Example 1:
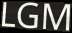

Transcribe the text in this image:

LGM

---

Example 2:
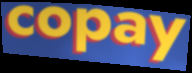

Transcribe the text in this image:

copay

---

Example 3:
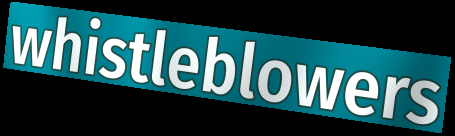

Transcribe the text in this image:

whistleblowers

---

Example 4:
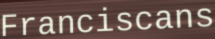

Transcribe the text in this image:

Franciscans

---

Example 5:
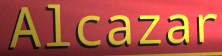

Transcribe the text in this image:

Alcazar